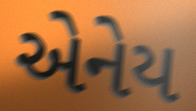
એનેય